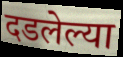
दडलेल्या